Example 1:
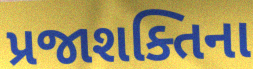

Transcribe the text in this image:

પ્રજાશક્તિના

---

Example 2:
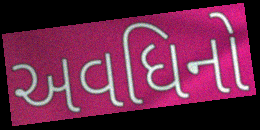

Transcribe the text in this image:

અવધિનો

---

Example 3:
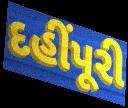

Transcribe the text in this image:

દહીંપૂરી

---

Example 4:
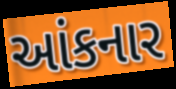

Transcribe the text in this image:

આંકનાર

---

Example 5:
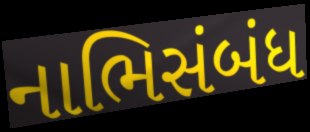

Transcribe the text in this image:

નાભિસંબંધ